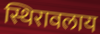
स्थिरावलाय